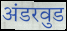
अंडरवुड